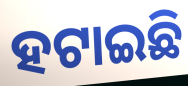
ହଟାଇଛି